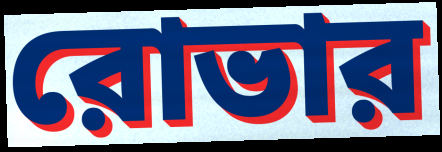
রোভার